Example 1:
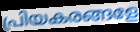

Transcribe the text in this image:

പ്രിയകരങ്ങളേ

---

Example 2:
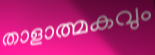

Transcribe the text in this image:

താളാത്മകവും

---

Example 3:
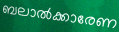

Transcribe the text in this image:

ബലാൽക്കാരേണ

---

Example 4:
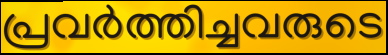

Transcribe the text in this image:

പ്രവർത്തിച്ചവരുടെ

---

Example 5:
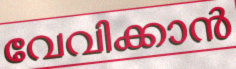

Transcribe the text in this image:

വേവിക്കാൻ